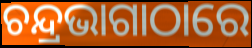
ଚନ୍ଦ୍ରଭାଗାଠାରେ